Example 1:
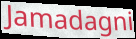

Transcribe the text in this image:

Jamadagni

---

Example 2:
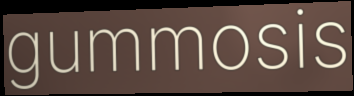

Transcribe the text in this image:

gummosis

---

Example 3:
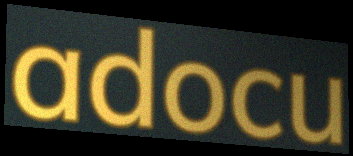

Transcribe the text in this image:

adocu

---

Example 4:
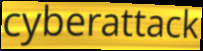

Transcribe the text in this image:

cyberattack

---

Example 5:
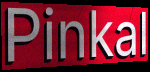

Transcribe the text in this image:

Pinkal